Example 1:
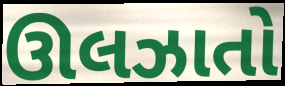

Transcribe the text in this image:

ઊલઝાતો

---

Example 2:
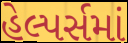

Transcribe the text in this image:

હેલ્પર્સમાં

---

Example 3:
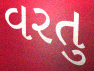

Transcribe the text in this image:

વરતુ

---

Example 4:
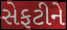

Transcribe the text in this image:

સેફટીને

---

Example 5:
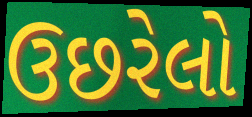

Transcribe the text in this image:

ઉછરેલો